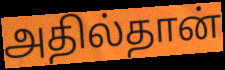
அதில்தான்